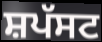
ਸ਼ਪੱਸਟ